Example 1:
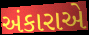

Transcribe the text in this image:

અંકારાએ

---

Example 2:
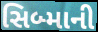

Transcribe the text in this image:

સિબ્માની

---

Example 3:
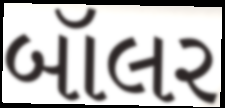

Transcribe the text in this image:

બૉલર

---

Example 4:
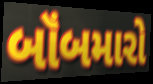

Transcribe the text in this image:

બૉંબમારો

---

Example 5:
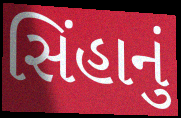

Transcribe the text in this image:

સિંહાનું